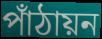
পাঁঠায়ন